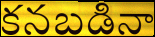
కనబడినా